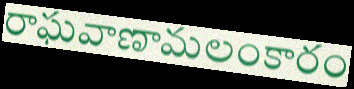
రాఘవాణామలంకారం